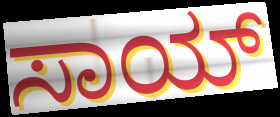
ಸಾಯ್